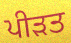
ਪੀਡ਼ਤ